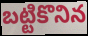
బట్టికొనిన